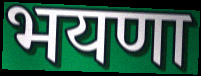
भयणा